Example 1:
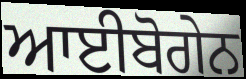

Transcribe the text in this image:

ਆਈਬੋਗੇਨ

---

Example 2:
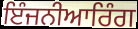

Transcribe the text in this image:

ਇੰਜਨੀਆਰਿੰਗ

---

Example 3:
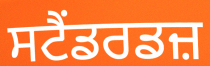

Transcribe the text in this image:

ਸਟੈਂਡਰਡਜ਼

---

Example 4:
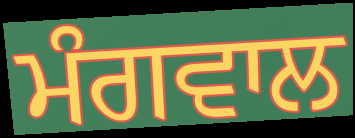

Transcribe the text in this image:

ਮੰਗਵਾਲ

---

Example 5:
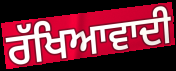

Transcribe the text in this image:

ਰੱਖਿਆਵਾਦੀ